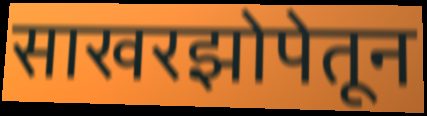
साखरझोपेतून